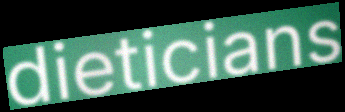
dieticians